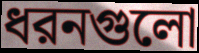
ধরনগুলো